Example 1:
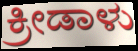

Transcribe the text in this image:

ಕ್ರೀಡಾಳು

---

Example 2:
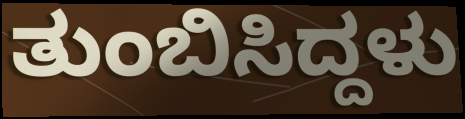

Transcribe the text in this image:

ತುಂಬಿಸಿದ್ದಳು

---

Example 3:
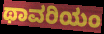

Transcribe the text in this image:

ಥಾವರಿಯಂ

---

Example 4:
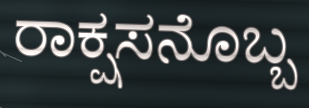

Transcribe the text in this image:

ರಾಕ್ಷಸನೊಬ್ಬ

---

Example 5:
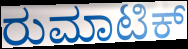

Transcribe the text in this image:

ರುಮಾಟಿಕ್